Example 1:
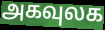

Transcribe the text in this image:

அகவுலக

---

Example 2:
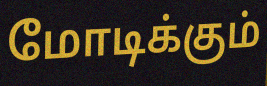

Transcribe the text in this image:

மோடிக்கும்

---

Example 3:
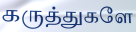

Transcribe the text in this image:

கருத்துகளே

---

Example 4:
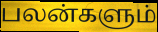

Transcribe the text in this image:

பலன்களும்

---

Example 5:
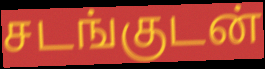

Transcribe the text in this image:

சடங்குடன்